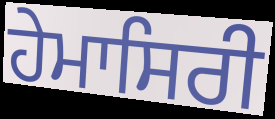
ਹੇਮਾਸਿਰੀ